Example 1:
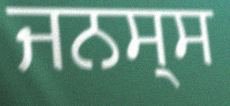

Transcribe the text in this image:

ਜਨਸ੍ਸ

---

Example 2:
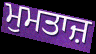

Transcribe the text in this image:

ਮੁਮਤਾਜ਼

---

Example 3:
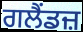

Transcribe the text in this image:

ਗਲੈਂਡਜ਼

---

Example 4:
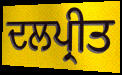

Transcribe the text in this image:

ਦਲਪ੍ਰੀਤ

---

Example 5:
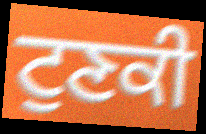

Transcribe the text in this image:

ਟੁਣਕੀ